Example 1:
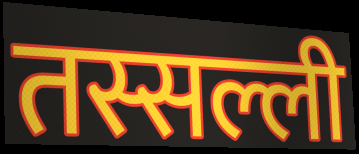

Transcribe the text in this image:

तस्सल्ली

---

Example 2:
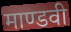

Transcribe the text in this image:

माण्डवी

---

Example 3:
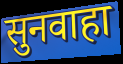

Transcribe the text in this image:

सुनवाहा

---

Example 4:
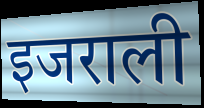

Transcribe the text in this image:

इजराली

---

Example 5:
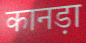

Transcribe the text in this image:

कानड़ा